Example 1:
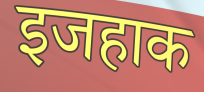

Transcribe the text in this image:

इजहाक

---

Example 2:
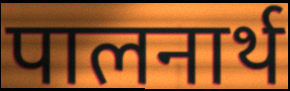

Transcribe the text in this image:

पालनार्थ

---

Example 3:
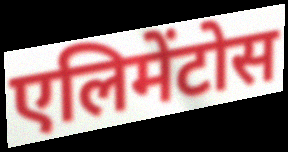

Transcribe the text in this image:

एलिमेंटोस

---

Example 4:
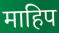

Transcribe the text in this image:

माहिप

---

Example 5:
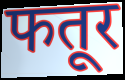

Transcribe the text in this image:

फतूर